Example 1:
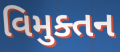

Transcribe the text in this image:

વિમુક્તન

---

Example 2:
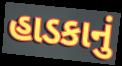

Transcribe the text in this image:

હાડકાનું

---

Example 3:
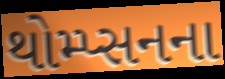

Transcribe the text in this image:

થોમ્પ્સનના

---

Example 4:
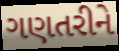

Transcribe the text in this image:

ગણતરીને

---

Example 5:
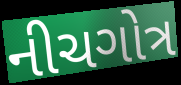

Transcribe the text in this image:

નીચગોત્ર